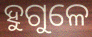
ହୁଗୁଳେ